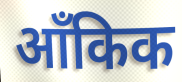
आँकिक